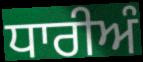
ਧਾਰੀਅੰ